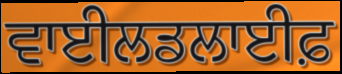
ਵਾਈਲਡਲਾਈਫ਼